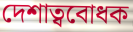
দেশাত্ববোধক